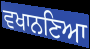
ਵਖਾਨਣਿਆ